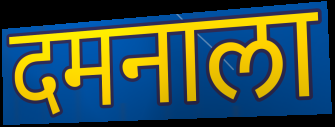
दमनाला